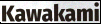
Kawakami